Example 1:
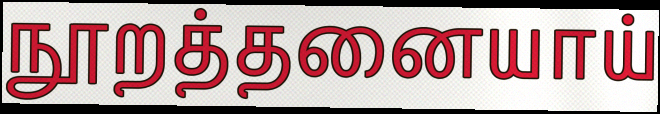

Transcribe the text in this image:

நூறத்தனையாய்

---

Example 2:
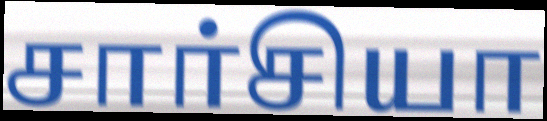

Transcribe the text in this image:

சார்சியா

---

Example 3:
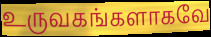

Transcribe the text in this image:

உருவகங்களாகவே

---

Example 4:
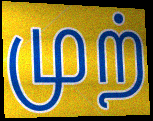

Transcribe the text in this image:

முற்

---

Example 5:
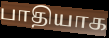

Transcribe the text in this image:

பாதியாக